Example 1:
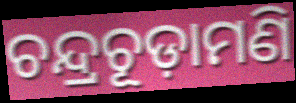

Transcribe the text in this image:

ଚନ୍ଦ୍ରଚୂଡ଼ାମଣି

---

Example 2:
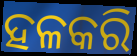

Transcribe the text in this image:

ହଳକରି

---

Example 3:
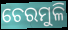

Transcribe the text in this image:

ଚେରମୁଳି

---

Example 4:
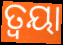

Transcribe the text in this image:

ତ୍ୱୟା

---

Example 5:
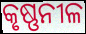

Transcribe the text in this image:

କୃଷ୍ଣନୀଳ